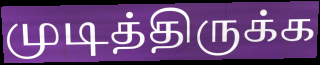
முடித்திருக்க